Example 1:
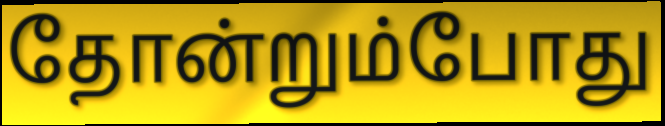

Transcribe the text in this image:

தோன்றும்போது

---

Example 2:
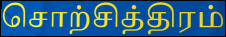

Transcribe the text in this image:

சொற்சித்திரம்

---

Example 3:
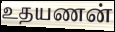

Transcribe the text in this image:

உதயணன்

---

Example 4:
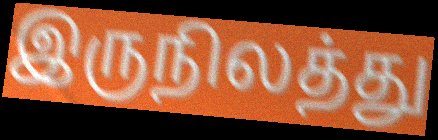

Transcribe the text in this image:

இருநிலத்து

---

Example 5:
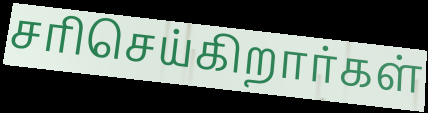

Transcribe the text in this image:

சரிசெய்கிறார்கள்